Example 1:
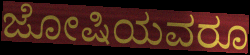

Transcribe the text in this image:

ಜೋಷಿಯವರೂ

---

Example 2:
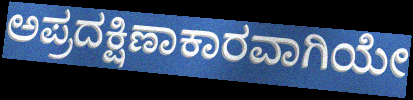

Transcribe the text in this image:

ಅಪ್ರದಕ್ಷಿಣಾಕಾರವಾಗಿಯೇ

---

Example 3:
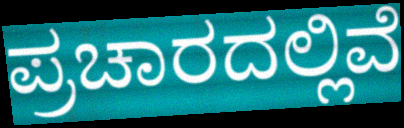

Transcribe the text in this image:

ಪ್ರಚಾರದಲ್ಲಿವೆ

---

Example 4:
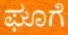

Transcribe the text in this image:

ಘೂಗೆ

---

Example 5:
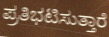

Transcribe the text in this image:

ಪ್ರತಿಭಟಿಸುತ್ತಾರೆ